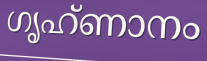
ഗൃഹ്ണാനം